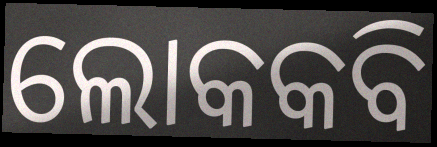
ଲୋକକବି